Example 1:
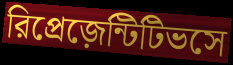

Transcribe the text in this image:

রিপ্রেজ়েন্টিটিভসে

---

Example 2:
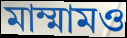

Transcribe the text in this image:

মাম্মামও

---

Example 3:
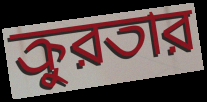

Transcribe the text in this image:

ক্রুরতার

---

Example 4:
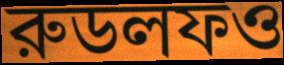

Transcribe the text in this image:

রুডলফও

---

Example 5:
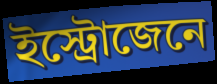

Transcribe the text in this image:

ইস্ট্রোজেনে